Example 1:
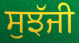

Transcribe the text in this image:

ਸੁਝੱਜੀ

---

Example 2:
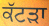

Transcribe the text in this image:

ਕੱਟੜਾ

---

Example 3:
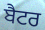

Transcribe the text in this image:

ਬੈਟਰ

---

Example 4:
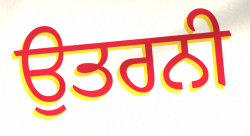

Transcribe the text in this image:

ਉਤਰਨੀ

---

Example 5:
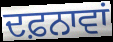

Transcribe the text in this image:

ਦਫ਼ਨਾਵਾਂ